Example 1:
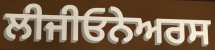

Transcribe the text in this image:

ਲੀਜੀਓਨੇਅਰਸ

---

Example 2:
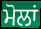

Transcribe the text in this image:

ਮੋਲਾਂ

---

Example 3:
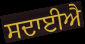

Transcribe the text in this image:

ਸਦਾਈਐ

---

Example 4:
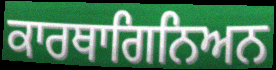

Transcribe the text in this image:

ਕਾਰਥਾਗਿਨਿਅਨ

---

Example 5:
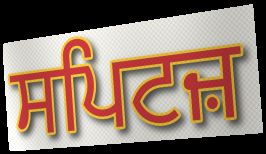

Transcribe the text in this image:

ਸਪਿਟਜ਼